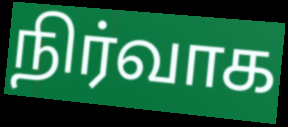
நிர்வாக